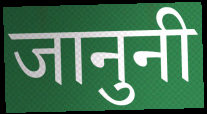
जानुनी